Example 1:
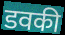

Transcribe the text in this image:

डवकी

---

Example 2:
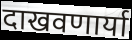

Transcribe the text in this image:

दाखवणार्या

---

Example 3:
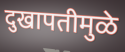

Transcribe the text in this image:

दुखापतीमुळे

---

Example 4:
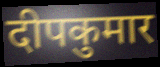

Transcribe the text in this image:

दीपकुमार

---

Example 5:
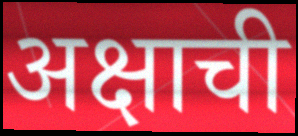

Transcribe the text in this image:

अक्षाची